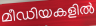
മീഡിയകളിൽ